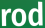
rod